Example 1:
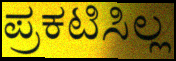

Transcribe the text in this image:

ಪ್ರಕಟಿಸಿಲ್ಲ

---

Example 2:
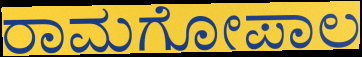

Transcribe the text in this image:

ರಾಮಗೋಪಾಲ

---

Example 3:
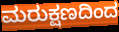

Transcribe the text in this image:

ಮರುಕ್ಷಣದಿಂದ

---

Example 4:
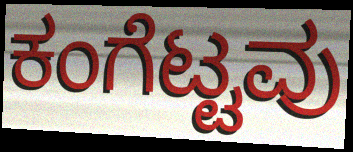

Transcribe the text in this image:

ಕಂಗೆಟ್ಟವು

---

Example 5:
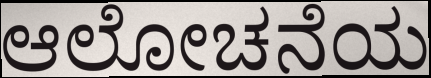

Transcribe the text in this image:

ಆಲೋಚನೆಯ